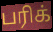
பரிக்